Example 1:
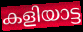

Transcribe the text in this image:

കളിയാട്ട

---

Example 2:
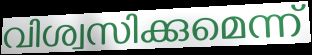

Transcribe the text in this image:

വിശ്വസിക്കുമെന്ന്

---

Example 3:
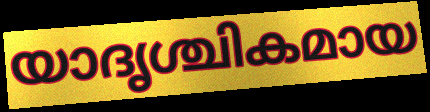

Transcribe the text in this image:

യാദൃശ്ചികമായ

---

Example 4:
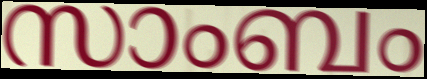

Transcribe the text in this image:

സാംബം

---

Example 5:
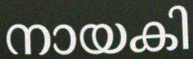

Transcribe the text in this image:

നായകി